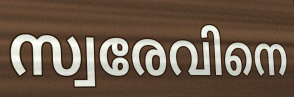
സ്വരേവിനെ